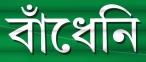
বাঁধেনি